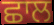
ਛਾਲ